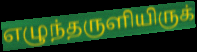
எழுந்தருளியிருக்